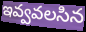
ఇవ్వవలసిన